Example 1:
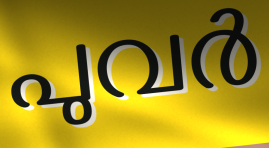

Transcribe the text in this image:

പുവർ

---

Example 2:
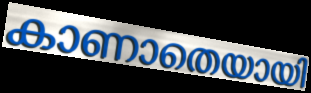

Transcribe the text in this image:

കാണാതെയായി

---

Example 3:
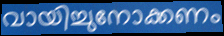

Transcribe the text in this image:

വായിച്ചുനോക്കണം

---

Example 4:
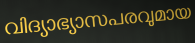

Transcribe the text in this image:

വിദ്യാഭ്യാസപരവുമായ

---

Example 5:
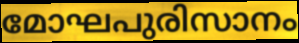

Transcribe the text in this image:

മോഘപുരിസാനം